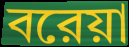
বরেয়া